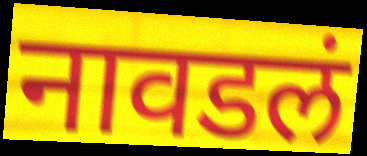
नावडलं